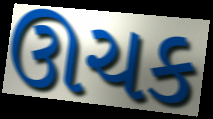
ઊચક